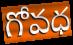
గోవధ